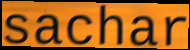
sachar